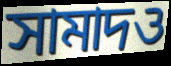
সামাদও